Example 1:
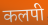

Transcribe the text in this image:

कलपी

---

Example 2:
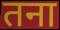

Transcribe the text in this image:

तना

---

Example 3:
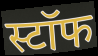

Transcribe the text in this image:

स्टॉफ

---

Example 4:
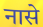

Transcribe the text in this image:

नासे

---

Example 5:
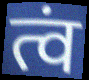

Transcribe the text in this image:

त्वं